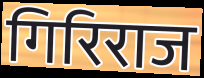
गिरिराज